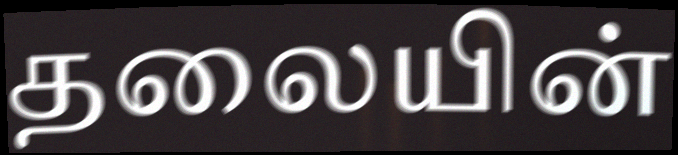
தலையின்